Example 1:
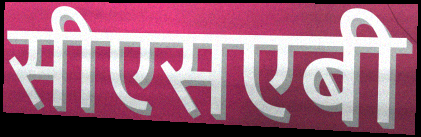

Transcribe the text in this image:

सीएसएबी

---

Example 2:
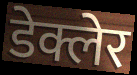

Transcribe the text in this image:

डेक्लेर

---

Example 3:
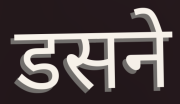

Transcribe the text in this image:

डसने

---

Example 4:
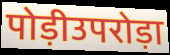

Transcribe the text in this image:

पोड़ीउपरोड़ा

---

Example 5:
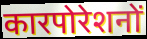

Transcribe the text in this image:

कारपोरेशनों